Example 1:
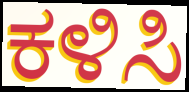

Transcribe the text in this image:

ಕಳಿಸಿ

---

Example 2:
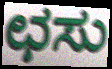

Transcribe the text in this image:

ಛಸು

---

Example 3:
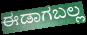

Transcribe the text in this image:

ಈಡಾಗಬಲ್ಲ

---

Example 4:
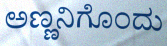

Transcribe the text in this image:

ಅಣ್ಣನಿಗೊಂದು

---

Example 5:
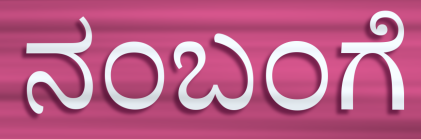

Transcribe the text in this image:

ನಂಬಂಗೆ